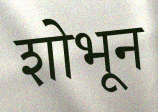
शोभून